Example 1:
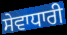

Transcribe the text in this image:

ਸੇਵਾਧਾਰੀ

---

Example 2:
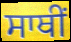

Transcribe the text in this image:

ਸਾਥੀਂ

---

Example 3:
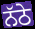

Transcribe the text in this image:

ਨੱਠੇ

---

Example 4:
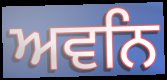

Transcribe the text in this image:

ਅਵਨਿ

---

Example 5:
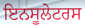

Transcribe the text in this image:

ਇਨਸੂਲੇਟਰਸ